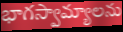
భాగస్వామ్యాలను